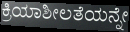
ಕ್ರಿಯಾಶೀಲತೆಯನ್ನೇ